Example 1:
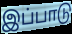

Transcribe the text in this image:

இப்பாடு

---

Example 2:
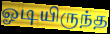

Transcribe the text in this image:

ஓடியிருந்த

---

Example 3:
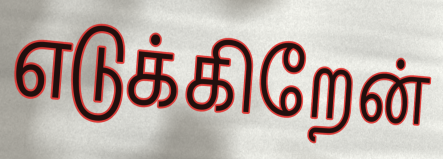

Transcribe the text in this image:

எடுக்கிறேன்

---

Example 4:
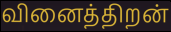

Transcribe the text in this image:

வினைத்திறன்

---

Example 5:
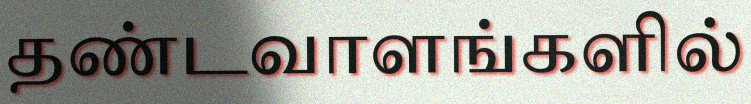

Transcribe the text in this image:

தண்டவாளங்களில்